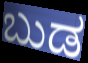
ಬುಡ